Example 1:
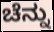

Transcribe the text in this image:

ಚೆನ್ನು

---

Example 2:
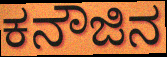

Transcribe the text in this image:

ಕನೌಜಿನ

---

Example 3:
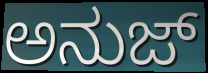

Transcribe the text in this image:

ಅನುಜ್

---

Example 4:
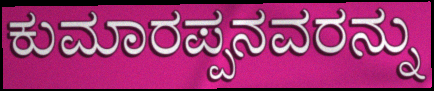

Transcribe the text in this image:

ಕುಮಾರಪ್ಪನವರನ್ನು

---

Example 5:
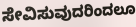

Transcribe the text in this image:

ಸೇವಿಸುವುದರಿಂದಲೂ